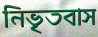
নিভৃতবাস